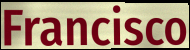
Francisco